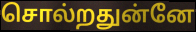
சொல்றதுன்னே